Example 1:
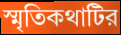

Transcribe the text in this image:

স্মৃতিকথাটির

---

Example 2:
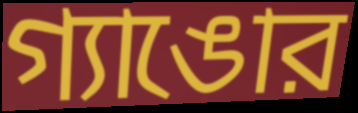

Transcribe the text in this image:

গ্যাঙোর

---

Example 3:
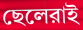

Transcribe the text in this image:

ছেলেরাই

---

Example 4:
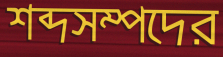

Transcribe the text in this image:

শব্দসম্পদের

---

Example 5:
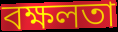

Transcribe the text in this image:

বক্ষলতা